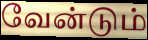
வேன்டும்